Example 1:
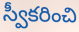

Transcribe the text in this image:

స్వీకరించి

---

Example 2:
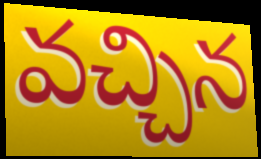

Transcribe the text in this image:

వచ్చిన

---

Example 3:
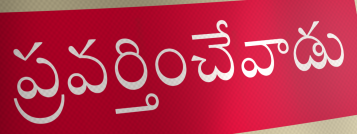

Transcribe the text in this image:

ప్రవర్తించేవాడు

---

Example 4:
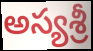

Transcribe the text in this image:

అస్యశ్రీ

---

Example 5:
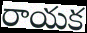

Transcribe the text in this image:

రాయక